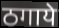
ठगाये